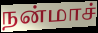
நன்மாச்